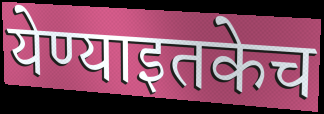
येण्याइतकेच